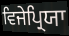
ਵਿਜੇਪ੍ਰਿਯਾ